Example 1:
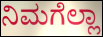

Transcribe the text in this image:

ನಿಮಗೆಲ್ಲಾ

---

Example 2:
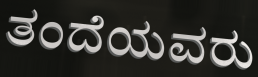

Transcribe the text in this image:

ತಂದೆಯವರು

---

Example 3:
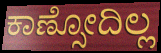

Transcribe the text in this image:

ಕಾಣ್ಸೋದಿಲ್ಲ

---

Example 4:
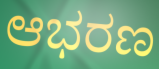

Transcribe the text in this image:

ಆಭರಣ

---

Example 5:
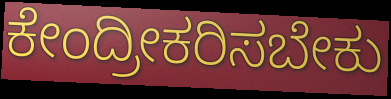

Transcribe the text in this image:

ಕೇಂದ್ರೀಕರಿಸಬೇಕು